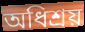
অধিশ্রয়